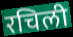
रचिली